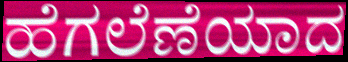
ಹೆಗಲೆಣೆಯಾದ